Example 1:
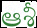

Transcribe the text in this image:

ఆశీ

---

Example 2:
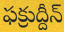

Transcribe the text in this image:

ఫక్రుద్దీన్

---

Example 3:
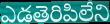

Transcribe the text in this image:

ఎడతెరిపిలేని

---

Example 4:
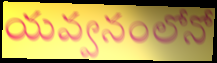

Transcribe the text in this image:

యవ్వనంలోనో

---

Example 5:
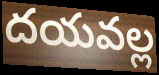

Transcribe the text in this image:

దయవల్ల